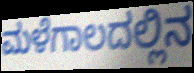
ಮಳೆಗಾಲದಲ್ಲಿನ